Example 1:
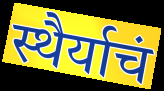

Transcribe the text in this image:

स्थैर्याचं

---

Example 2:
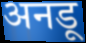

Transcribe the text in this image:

अनडू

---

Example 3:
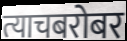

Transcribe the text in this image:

त्‍याचबरोबर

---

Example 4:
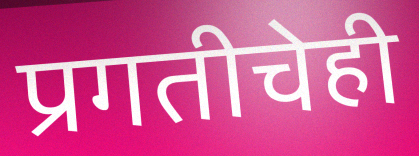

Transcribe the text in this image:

प्रगतीचेही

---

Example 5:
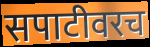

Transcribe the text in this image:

सपाटीवरच